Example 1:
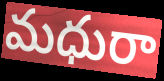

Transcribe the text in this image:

మధురా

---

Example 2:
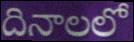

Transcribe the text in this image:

దినాలలో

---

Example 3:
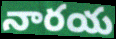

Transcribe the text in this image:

నారయ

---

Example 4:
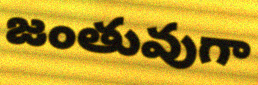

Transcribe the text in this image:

జంతువుగా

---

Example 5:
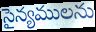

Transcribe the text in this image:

సైన్యములను